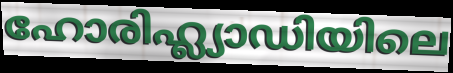
ഹോരിഹ്ല്യാഡിയിലെ